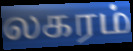
லகரம்